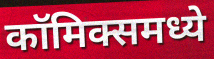
कॉमिक्समध्ये